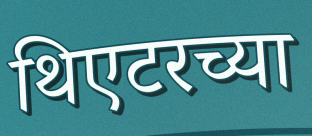
थिएटरच्या